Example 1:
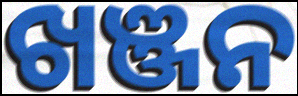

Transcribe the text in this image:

ଖଞ୍ଜନ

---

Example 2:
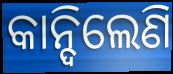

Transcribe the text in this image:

କାନ୍ଦିଲେଣି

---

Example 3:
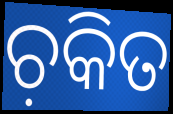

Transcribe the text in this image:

ଚ଼କିତ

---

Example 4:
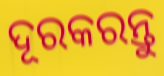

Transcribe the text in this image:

ଦୂରକରନ୍ତୁ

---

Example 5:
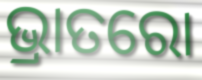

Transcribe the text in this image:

ଭ୍ରାତରୋ